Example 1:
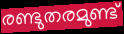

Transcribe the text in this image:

രണ്ടുതരമുണ്ട്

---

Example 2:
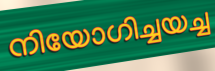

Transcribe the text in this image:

നിയോഗിച്ചയച്ച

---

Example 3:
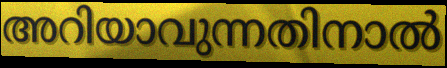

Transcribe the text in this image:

അറിയാവുന്നതിനാൽ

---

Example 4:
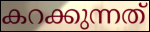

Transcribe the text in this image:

കറക്കുന്നത്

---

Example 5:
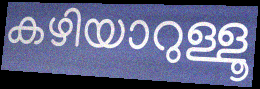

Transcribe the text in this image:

കഴിയാറുള്ളൂ